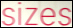
sizes